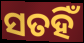
ସତହିଁ